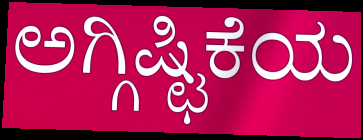
ಅಗ್ಗಿಷ್ಟಿಕೆಯ